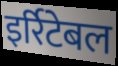
इर्रिटेबल